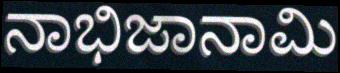
ನಾಭಿಜಾನಾಮಿ